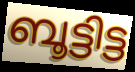
ബൂട്ടിട്ട